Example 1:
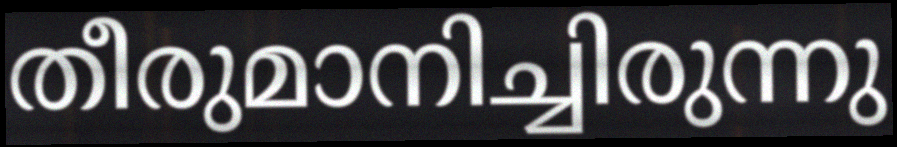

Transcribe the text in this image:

തീരുമാനിച്ചിരുന്നു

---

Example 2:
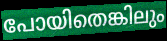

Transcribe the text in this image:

പോയിതെങ്കിലും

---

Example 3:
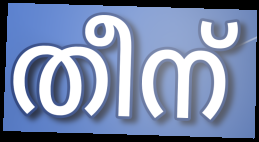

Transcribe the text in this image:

തീന്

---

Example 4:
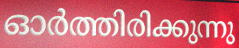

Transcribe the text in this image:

ഓർത്തിരിക്കുന്നു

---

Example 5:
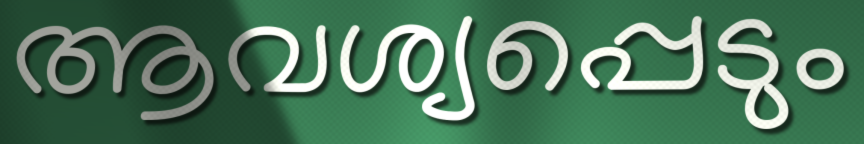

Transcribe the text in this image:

ആവശ്യപ്പെടും